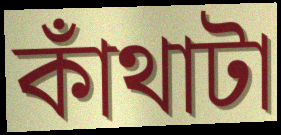
কাঁথাটা